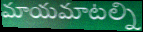
మాయమాటల్ని